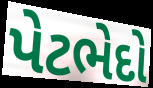
પેટભેદો